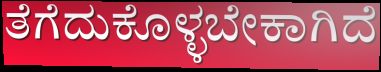
ತೆಗೆದುಕೊಳ್ಳಬೇಕಾಗಿದೆ